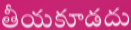
తీయకూడదు